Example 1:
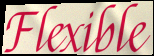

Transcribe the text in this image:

Flexible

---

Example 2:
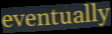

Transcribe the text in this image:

eventually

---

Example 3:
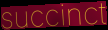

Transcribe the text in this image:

succinct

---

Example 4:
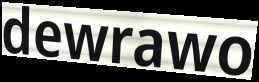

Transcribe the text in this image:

dewrawo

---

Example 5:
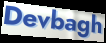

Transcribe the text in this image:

Devbagh